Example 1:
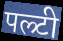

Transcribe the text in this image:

पल्टी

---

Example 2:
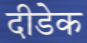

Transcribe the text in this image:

दीडेक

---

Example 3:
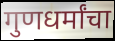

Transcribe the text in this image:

गुणधर्मांचा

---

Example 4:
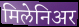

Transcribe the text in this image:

मिलेनिअर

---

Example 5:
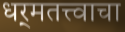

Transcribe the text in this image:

धर्मतत्त्वाचा